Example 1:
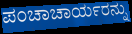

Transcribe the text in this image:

ಪಂಚಾಚಾರ್ಯರನ್ನು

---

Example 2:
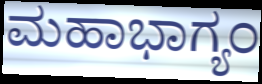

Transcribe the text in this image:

ಮಹಾಭಾಗ್ಯಂ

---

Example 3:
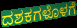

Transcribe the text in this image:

ದಶಕಗಳೊಳಗೆ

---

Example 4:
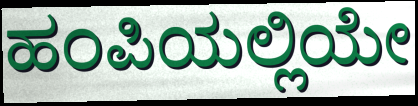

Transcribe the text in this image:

ಹಂಪಿಯಲ್ಲಿಯೇ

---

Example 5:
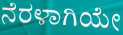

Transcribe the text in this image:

ನೆರಳಾಗಿಯೇ